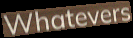
Whatevers